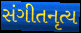
સંગીતનૃત્ય